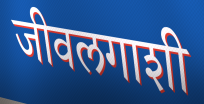
जीवलगाशी